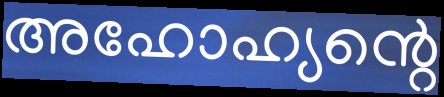
അഹോഹ്യന്റെ